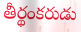
తీర్థంకరుడు